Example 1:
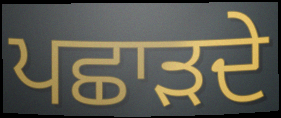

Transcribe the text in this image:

ਪਛਾੜਦੇ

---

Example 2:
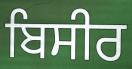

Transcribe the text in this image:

ਬਿਸੀਰ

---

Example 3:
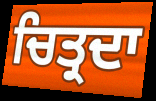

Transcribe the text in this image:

ਚਿਤ੍ਰਦਾ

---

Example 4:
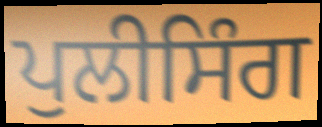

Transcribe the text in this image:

ਪੁਲੀਸਿੰਗ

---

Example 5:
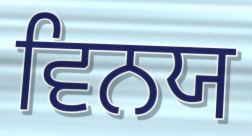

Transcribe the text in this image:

ਵਿਨਯ